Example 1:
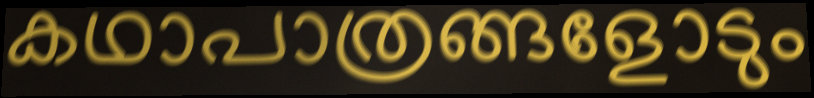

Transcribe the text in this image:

കഥാപാത്രങ്ങളോടും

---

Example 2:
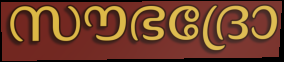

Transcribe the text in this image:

സൗഭദ്രോ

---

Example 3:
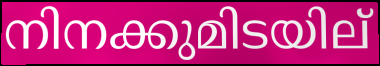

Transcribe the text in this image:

നിനക്കുമിടയില്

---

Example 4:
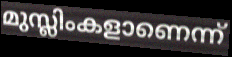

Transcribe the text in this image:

മുസ്ലിംകളാണെന്ന്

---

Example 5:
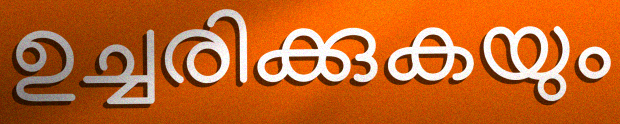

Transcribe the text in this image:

ഉച്ചരിക്കുകയും